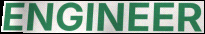
ENGINEER